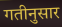
गतीनुसार